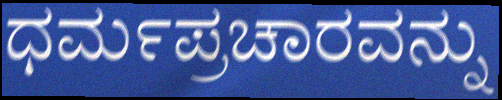
ಧರ್ಮಪ್ರಚಾರವನ್ನು